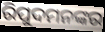
ରିପୁଦମନଙ୍କର